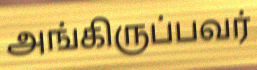
அங்கிருப்பவர்